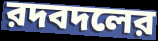
রদবদলের